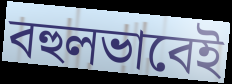
বহুলভাবেই